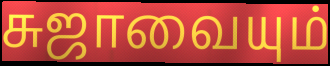
சுஜாவையும்